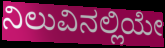
ನಿಲುವಿನಲ್ಲಿಯೇ